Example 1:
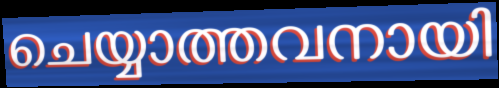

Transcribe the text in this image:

ചെയ്യാത്തവനായി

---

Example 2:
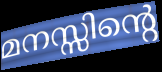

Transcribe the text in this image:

മനസ്സിന്റെ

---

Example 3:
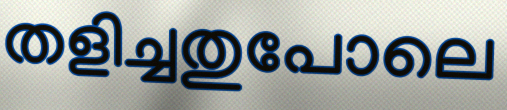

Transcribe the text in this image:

തളിച്ചതുപോലെ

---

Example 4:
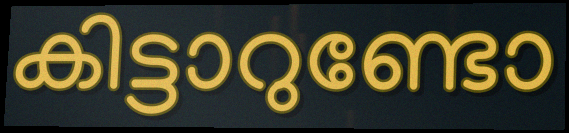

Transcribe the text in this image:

കിട്ടാറുണ്ടോ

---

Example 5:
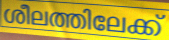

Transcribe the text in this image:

ശീലത്തിലേക്ക്